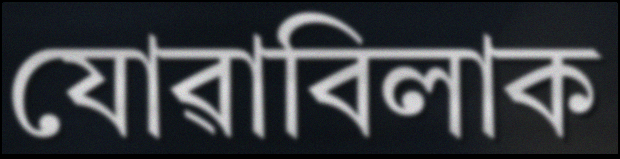
যোৱাবিলাক